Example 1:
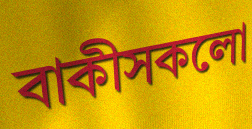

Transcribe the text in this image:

বাকীসকলো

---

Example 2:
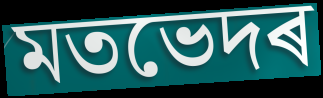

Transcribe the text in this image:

মতভেদৰ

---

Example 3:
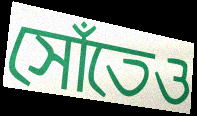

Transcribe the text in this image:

সোঁতেও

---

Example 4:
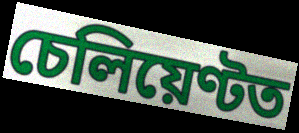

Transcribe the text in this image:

চেলিয়েণ্টত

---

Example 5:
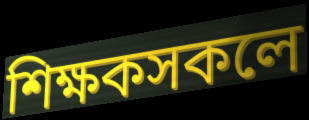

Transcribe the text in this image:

শিক্ষকসকলে